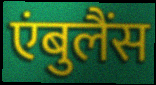
एंबुलैंस